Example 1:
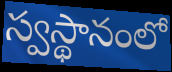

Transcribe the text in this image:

స్వస్థానంలో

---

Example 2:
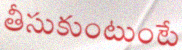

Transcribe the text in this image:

తీసుకుంటుంటే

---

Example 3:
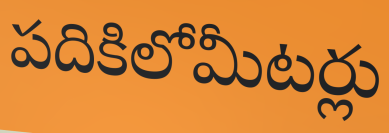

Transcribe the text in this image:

పదికిలోమీటర్లు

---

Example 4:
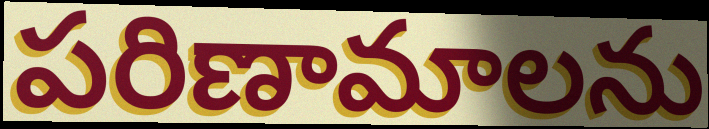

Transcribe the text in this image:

పరిణామాలను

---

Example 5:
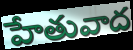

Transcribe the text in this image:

హేతువాద